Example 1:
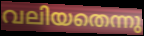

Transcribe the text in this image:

വലിയതെന്നു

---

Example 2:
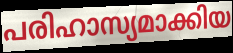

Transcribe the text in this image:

പരിഹാസ്യമാക്കിയ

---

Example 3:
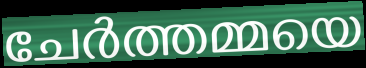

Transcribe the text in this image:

ചേർത്തമ്മയെ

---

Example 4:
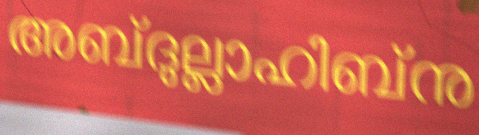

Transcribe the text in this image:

അബ്ദുല്ലാഹിബ്നു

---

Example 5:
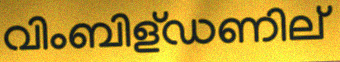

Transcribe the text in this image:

വിംബിള്ഡണില്